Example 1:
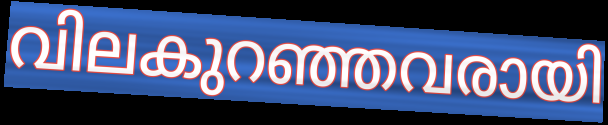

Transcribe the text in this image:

വിലകുറഞ്ഞവരായി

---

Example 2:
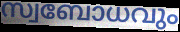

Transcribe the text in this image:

സ്വബോധവും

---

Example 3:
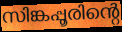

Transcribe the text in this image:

സിങ്കപ്പൂരിന്റെ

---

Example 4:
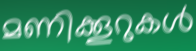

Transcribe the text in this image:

മണിക്കൂറുകൾ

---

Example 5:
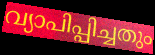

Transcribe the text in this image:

വ്യാപിപ്പിച്ചതും